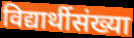
विद्यार्थीसंख्या